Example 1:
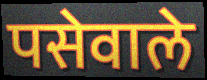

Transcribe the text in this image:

पसेवाले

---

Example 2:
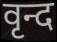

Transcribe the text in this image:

वृन्द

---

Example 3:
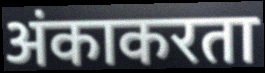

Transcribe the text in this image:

अंकाकरता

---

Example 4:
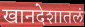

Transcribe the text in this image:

खानदेशातलं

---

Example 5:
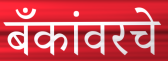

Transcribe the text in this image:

बँकांवरचे